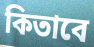
কিতাবে